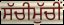
ਸੱਚੀਮੁੱਚੀਂ